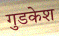
गुडकेश